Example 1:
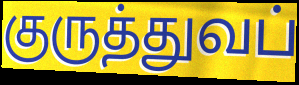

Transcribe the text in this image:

குருத்துவப்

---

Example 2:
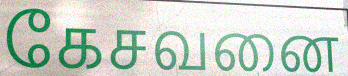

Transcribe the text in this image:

கேசவனை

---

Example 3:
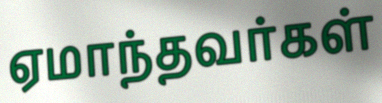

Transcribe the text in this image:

ஏமாந்தவர்கள்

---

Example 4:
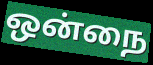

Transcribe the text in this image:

ஒன்நை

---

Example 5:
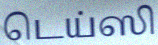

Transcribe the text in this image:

டெய்ஸி